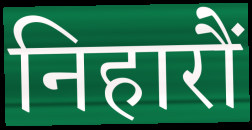
निहारौं